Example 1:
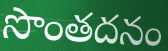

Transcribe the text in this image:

సొంతదనం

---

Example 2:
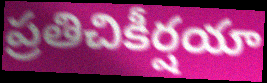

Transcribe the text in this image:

ప్రతిచికీర్షయా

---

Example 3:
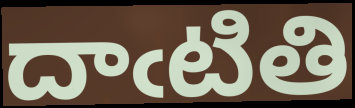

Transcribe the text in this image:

దాఁటితి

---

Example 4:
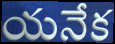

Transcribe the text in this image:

యనేక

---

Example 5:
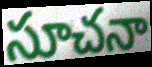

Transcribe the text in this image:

సూచనా